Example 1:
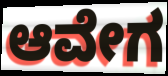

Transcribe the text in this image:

ಆವೇಗ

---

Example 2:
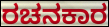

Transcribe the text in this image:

ರಚನಕಾರ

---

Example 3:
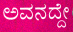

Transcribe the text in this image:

ಅವನದ್ದೇ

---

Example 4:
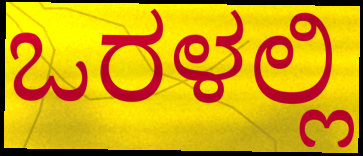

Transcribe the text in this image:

ಒರಳಲ್ಲಿ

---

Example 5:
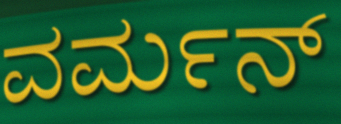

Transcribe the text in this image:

ವರ್ಮನ್